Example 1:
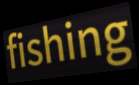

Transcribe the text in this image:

fishing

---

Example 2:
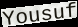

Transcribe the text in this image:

Yousuf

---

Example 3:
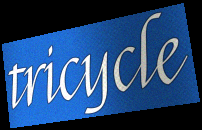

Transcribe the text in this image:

tricycle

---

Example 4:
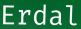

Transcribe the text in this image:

Erdal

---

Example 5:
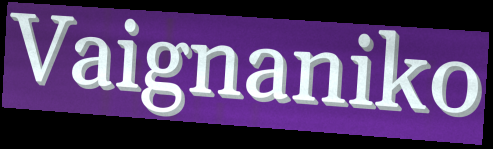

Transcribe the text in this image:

Vaignaniko